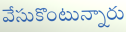
వేసుకొంటున్నారు